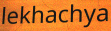
lekhachya